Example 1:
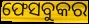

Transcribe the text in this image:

ଫେସବୁକର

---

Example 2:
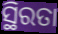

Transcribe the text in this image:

ସ୍ଥିରତା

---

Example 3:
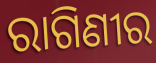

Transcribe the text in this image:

ରାଗିଣୀର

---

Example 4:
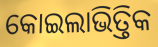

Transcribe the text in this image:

କୋଇଲାଭିତ୍ତିକ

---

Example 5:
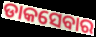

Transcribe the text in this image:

ଡାକସେବାର